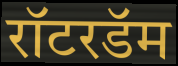
रॉटरडॅम